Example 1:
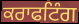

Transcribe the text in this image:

ਕਰਾਫਟਿੰਗ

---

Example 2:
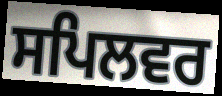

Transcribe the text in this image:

ਸਪਿਲਵਰ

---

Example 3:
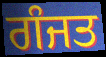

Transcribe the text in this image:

ਗੰਜਤ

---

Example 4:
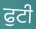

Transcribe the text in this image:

ਫੁਟੀ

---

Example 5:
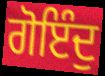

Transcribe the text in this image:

ਗੋਇੰਦੁ